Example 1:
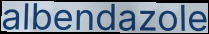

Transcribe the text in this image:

albendazole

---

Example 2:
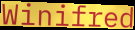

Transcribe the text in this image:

Winifred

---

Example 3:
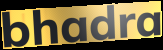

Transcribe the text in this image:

bhadra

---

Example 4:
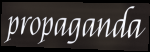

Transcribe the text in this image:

propaganda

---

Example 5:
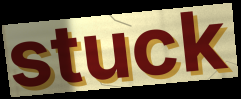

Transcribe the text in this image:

stuck